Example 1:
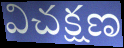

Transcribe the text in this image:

విచక్షణ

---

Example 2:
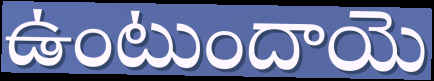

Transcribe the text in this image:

ఉంటుందాయె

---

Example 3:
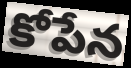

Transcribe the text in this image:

కోపేన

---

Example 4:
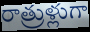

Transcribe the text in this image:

రాత్రుళ్లుగా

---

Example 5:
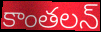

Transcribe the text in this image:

కాంతలన్